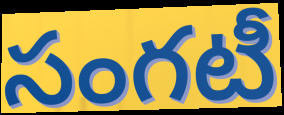
సంగటీ